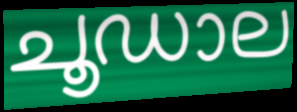
ചൂഡാല